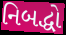
નિબદ્ધો